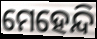
ମେହେନ୍ଦି